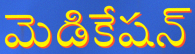
మెడికేషన్